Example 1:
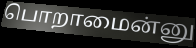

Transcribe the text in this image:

பொறாமைன்னு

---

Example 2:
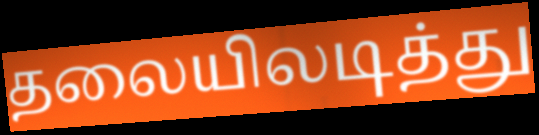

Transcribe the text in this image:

தலையிலடித்து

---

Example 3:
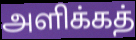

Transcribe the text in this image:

அளிக்கத்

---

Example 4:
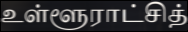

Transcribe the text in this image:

உள்ளூராட்சித்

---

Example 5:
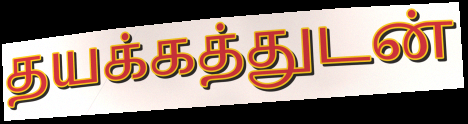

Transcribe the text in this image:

தயக்கத்துடன்